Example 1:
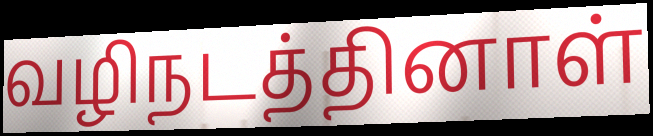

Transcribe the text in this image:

வழிநடத்தினாள்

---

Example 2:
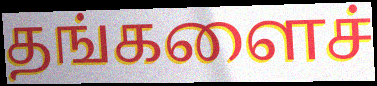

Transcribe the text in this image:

தங்களைச்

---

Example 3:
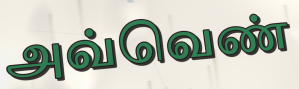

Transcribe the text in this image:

அவ்வெண்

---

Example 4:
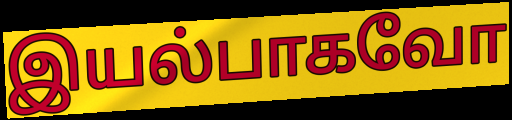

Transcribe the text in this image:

இயல்பாகவோ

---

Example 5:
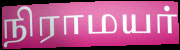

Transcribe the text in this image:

நிராமயர்